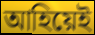
আহিয়েই